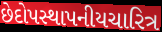
છેદોપસ્થાપનીયચારિત્ર